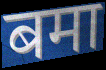
बमा